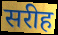
सरीह